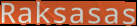
Raksasas